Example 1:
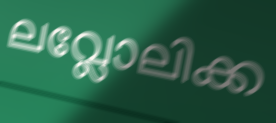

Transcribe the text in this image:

ലവ്ലോലിക്ക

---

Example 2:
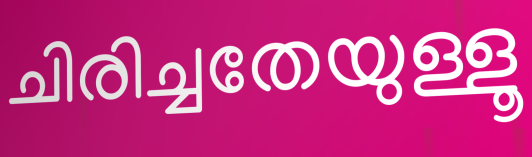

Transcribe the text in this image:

ചിരിച്ചതേയുള്ളൂ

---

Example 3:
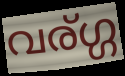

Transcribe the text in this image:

വര്ഗ്ഗ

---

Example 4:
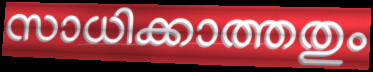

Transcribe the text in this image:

സാധിക്കാത്തതും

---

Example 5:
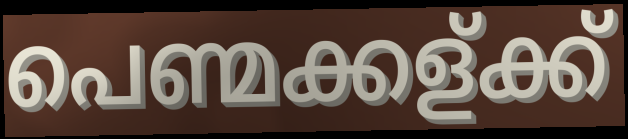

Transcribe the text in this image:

പെണ്മക്കള്ക്ക്